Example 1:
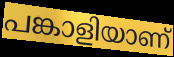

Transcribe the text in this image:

പങ്കാളിയാണ്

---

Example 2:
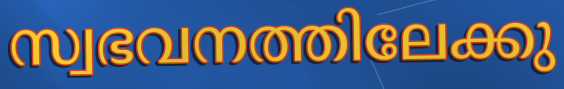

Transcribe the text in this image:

സ്വഭവനത്തിലേക്കു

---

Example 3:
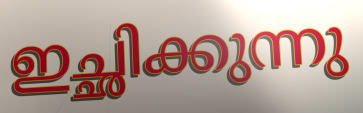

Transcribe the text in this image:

ഇച്ഛിക്കുന്നു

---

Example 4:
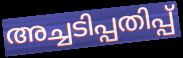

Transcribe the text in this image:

അച്ചടിപ്പതിപ്പ്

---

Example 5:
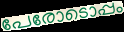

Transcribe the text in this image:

പേരോടൊപ്പം